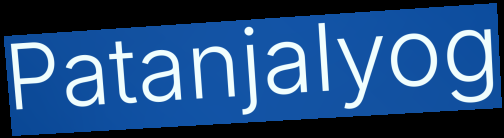
Patanjalyog